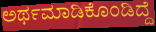
ಅರ್ಥಮಾಡಿಕೊಂಡಿದ್ದೆ